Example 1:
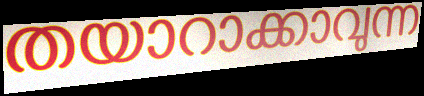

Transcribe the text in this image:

തയാറാക്കാവുന്ന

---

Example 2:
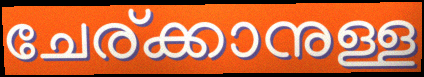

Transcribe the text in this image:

ചേര്ക്കാനുള്ള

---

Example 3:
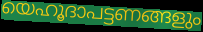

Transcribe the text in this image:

യെഹൂദാപട്ടണങ്ങളും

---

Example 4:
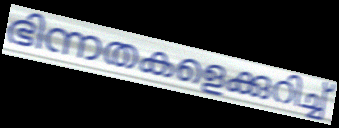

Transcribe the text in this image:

ഭിന്നതകളെക്കുറിച്ച്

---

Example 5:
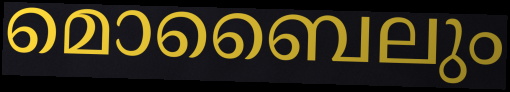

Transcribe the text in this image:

മൊബൈലും